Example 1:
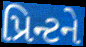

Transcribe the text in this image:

પ્રિન્ટને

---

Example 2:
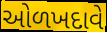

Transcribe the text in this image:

ઓળખદાવે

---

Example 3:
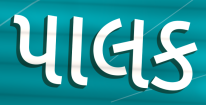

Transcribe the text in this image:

પાલક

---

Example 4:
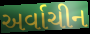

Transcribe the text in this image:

અર્વાચીન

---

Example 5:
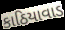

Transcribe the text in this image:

કાઠિયાવાડ